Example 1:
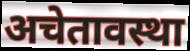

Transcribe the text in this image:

अचेतावस्था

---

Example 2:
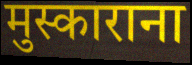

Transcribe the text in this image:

मुस्काराना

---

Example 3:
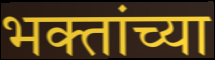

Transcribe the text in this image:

भक्तांच्या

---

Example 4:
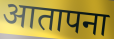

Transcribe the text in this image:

आतापना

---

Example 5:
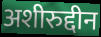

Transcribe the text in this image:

अशीरुद्दीन